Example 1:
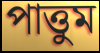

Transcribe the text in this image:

পাত্তুম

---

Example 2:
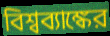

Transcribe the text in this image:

বিশ্বব্যাঙ্কের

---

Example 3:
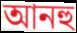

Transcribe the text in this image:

আনহু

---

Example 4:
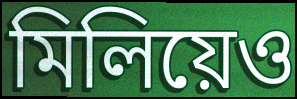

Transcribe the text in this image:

মিলিয়েও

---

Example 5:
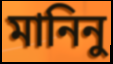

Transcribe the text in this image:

মানিনু